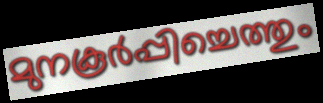
മുനകൂർപ്പിച്ചെത്തും